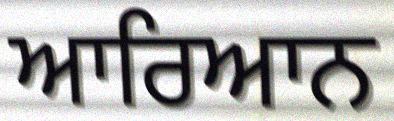
ਆਰਿਆਨ